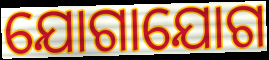
ଯୋଗାଯୋଗ